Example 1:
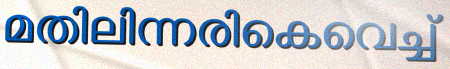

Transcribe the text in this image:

മതിലിന്നരികെവെച്ച്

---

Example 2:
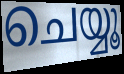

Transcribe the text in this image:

ചെയ്യൂ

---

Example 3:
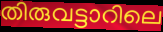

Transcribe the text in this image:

തിരുവട്ടാറിലെ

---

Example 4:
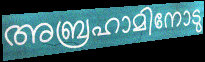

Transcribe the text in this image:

അബ്രഹാമിനോടു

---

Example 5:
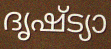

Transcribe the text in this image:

ദൃഷ്ട്യാ